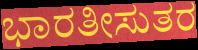
ಭಾರತೀಸುತರ